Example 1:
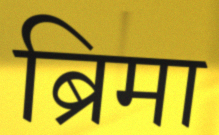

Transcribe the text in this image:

ब्रिमा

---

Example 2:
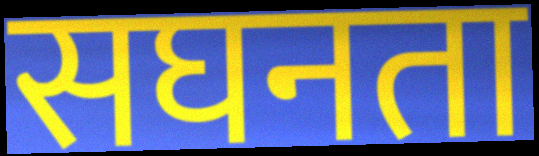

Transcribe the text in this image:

सघनता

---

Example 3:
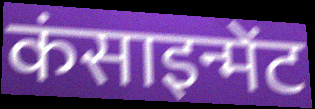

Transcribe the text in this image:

कंसाइन्मेंट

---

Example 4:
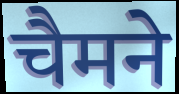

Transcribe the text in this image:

चैमने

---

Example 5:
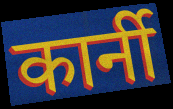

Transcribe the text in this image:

कार्नी